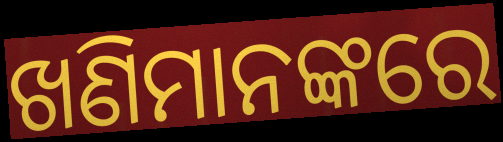
ଖଣିମାନଙ୍କରେ